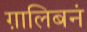
ग़ालिबनं